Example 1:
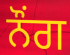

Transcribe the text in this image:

ਨੌਂਗ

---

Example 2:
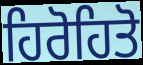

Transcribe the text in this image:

ਹਿਰੋਹਿਤੋ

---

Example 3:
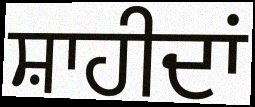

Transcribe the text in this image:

ਸ਼ਾਹੀਦਾਂ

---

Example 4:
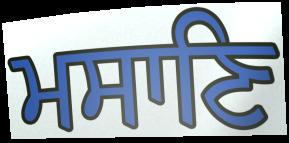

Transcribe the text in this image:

ਮਸਾਣਿ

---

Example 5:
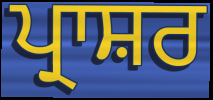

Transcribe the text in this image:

ਪ੍ਰਾਸ਼ਰ